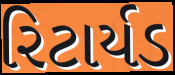
રિટાર્યડ